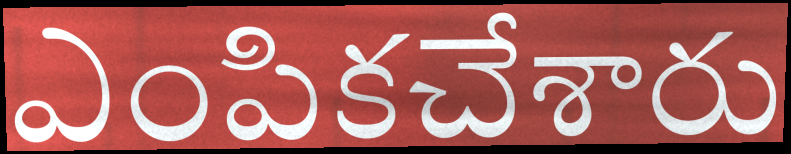
ఎంపికచేశారు